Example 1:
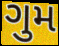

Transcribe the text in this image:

ગુમ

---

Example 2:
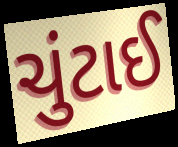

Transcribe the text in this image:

ચુંટાઈ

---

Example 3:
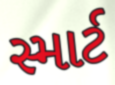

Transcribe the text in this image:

સ્માર્ટ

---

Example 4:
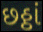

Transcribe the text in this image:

છઠ્ઠાં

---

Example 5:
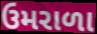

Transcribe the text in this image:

ઉમરાળા